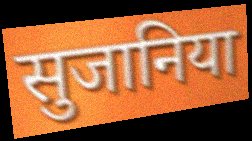
सुजानिया